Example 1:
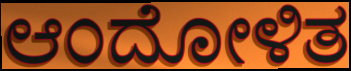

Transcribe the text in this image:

ಆಂದೋಳಿತ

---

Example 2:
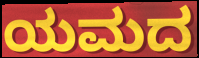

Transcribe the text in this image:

ಯಮದ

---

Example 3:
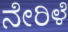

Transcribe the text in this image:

ನೇರಿಳೆ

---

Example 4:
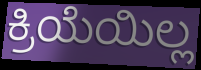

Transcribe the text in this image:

ಕ್ರಿಯೆಯಿಲ್ಲ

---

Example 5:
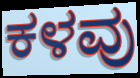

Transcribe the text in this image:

ಕಳವು